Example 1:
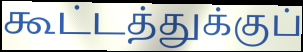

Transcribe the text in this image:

கூட்டத்துக்குப்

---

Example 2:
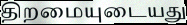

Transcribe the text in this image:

திறமையுடையது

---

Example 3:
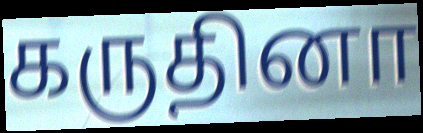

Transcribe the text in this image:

கருதினா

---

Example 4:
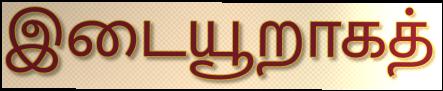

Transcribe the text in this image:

இடையூறாகத்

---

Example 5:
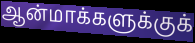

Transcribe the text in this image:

ஆன்மாக்களுக்குக்